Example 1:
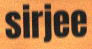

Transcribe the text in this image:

sirjee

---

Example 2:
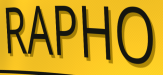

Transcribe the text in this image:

RAPHO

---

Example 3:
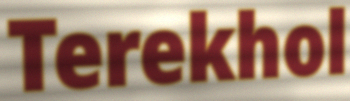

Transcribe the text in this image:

Terekhol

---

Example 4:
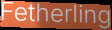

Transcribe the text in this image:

Fetherling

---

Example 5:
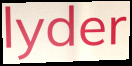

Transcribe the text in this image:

lyder